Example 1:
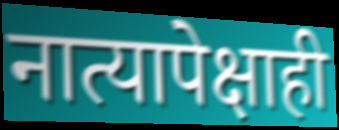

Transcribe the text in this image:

नात्यापेक्षाही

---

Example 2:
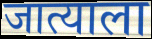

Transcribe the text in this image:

जात्याला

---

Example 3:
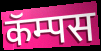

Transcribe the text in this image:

कॅम्पस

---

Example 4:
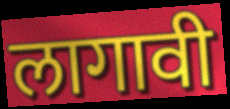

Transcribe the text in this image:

लागावी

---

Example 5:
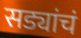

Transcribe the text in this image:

सड्यांचं